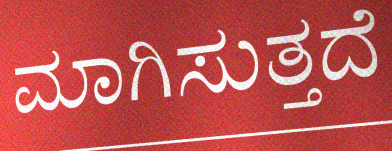
ಮಾಗಿಸುತ್ತದೆ